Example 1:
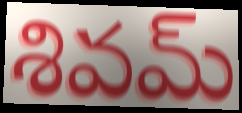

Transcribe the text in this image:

శివమ్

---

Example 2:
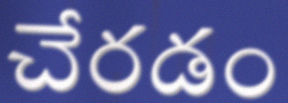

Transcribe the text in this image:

చేరడం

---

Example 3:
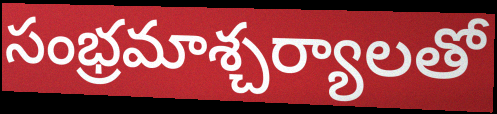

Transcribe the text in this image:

సంభ్రమాశ్చర్యాలతో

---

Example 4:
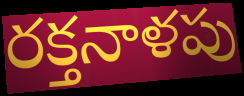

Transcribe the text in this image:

రక్తనాళపు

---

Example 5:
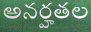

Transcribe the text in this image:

అనర్హతల